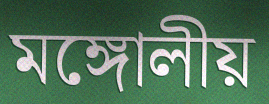
মঙ্গোলীয়